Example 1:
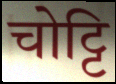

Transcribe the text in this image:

चोट्टि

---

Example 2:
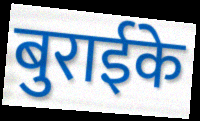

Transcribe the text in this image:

बुराईके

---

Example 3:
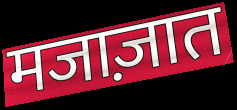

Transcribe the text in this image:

मजाज़ात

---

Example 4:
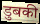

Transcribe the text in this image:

डुबकी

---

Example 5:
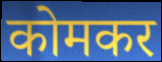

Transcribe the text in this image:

कोमकर